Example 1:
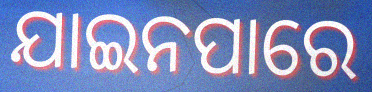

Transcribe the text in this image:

ଯାଇନପାରେ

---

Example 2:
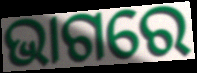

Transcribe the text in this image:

ଭାଗରେ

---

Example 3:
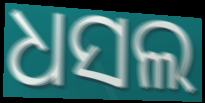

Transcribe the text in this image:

ଧସଲ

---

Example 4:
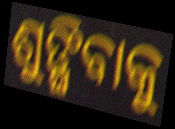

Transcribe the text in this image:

ଶୁଙ୍ଘିବାକୁ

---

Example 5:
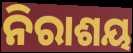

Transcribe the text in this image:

ନିରାଶୟ